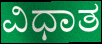
ವಿಧಾತ